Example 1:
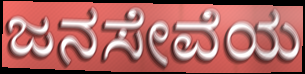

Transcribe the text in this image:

ಜನಸೇವೆಯ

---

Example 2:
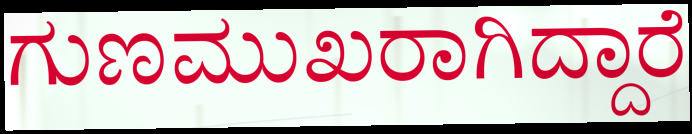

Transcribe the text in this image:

ಗುಣಮುಖರಾಗಿದ್ದಾರೆ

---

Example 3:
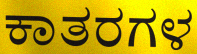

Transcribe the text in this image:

ಕಾತರಗಳ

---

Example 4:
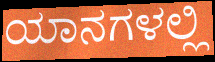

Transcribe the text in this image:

ಯಾನಗಳಲ್ಲಿ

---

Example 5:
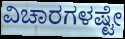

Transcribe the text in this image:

ವಿಚಾರಗಳಷ್ಟೇ